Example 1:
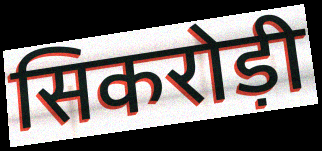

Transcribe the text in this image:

सिकरोड़ी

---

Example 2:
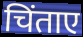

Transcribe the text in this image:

चिंताए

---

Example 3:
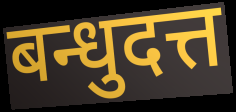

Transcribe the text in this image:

बन्धुदत्त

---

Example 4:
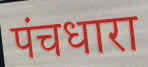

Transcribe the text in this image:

पंचधारा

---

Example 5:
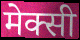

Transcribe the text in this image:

मेक्सी